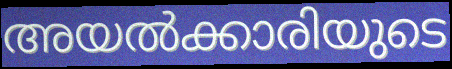
അയൽക്കാരിയുടെ